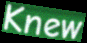
Knew